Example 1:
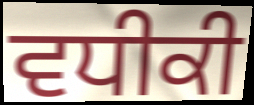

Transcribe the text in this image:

ਵਧੀਕੀ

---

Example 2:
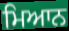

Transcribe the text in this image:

ਮਿਆਨ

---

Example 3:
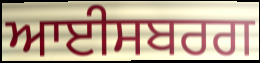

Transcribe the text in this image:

ਆਈਸਬਰਗ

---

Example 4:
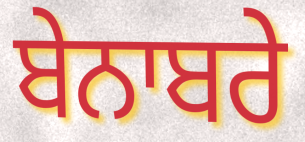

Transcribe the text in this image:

ਬੇਨਾਬਰੇ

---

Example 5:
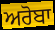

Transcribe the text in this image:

ਅਰੋਬਾ